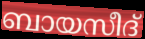
ബായസീദ്